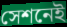
সেশনেই